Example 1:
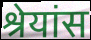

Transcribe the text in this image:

श्रेयांस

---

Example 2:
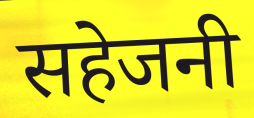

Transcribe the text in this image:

सहेजनी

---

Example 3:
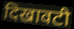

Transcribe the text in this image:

दिखावटी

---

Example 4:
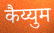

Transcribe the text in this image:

कैय्युम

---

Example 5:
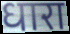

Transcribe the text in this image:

धारा